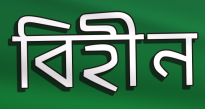
বিহীন